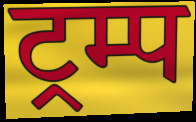
ट्रम्प